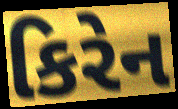
કિરેન